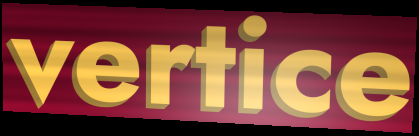
vertice